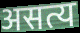
असत्य